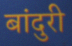
बांदुरी